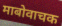
माबोवाचक